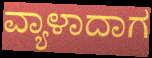
ವ್ಯಾಳಾದಾಗ